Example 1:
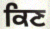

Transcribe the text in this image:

ਕਿਣ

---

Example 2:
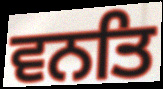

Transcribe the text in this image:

ਵਨਤਿ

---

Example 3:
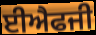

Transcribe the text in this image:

ਈਐਫਜੀ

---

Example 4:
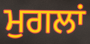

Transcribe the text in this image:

ਮੁਗਲਾਂ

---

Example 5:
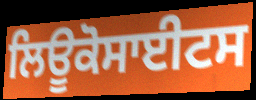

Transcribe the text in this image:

ਲਿਊਕੋਸਾਈਟਸ